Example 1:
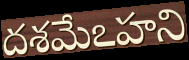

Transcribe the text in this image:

దశమేఽహని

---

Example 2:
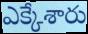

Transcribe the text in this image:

ఎక్కేశారు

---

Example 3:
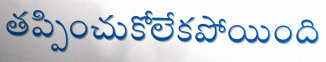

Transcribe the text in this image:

తప్పించుకోలేకపోయింది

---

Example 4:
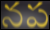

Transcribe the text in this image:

నప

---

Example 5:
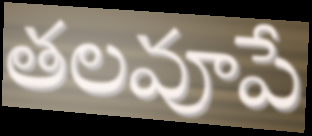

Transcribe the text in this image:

తలవూపే